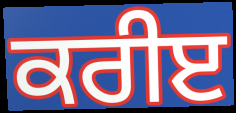
ਕਰੀੲ